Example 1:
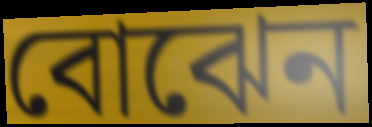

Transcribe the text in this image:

বোঝেন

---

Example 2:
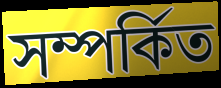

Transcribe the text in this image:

সম্পর্কিত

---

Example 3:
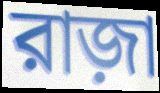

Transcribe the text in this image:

রাজ়া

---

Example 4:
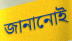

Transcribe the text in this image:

জানানোই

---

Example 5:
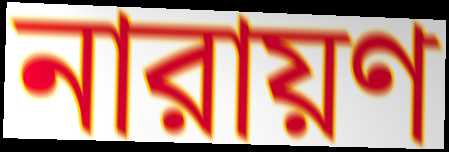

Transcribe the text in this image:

নারায়ণ